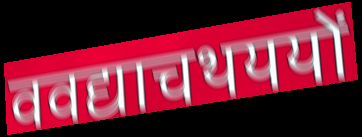
ववद्याचथययों